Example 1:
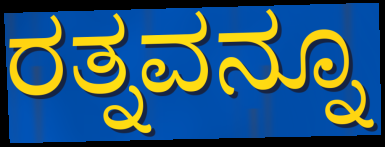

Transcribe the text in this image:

ರತ್ನವನ್ನೂ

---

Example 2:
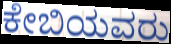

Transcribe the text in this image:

ಕೇಬಿಯವರು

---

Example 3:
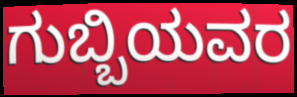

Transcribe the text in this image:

ಗುಬ್ಬಿಯವರ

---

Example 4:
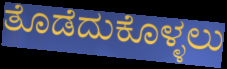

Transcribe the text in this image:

ತೊಡೆದುಕೊಳ್ಳಲು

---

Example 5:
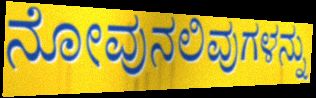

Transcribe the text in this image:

ನೋವುನಲಿವುಗಳನ್ನು